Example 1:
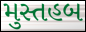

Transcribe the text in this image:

મુસ્તહબ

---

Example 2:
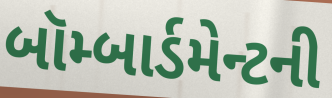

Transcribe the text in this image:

બૉમ્બાર્ડમેન્ટની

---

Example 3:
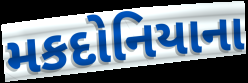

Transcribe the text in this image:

મકદોનિયાના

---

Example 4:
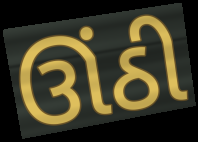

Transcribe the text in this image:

ઊંઠી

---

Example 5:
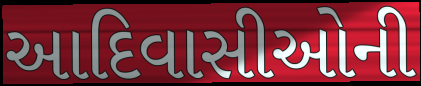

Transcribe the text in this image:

આદિવાસીઓની